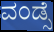
ವಂಡ್ಸೆ